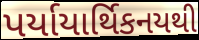
પર્યાયાર્થિકનયથી